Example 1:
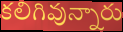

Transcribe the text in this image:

కలిగివున్నారు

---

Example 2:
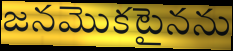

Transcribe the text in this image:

జనమొకటైనను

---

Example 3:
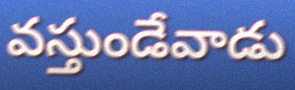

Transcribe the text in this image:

వస్తుండేవాడు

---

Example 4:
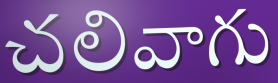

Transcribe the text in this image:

చలివాగు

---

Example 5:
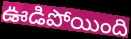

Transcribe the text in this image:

ఊడిపోయింది